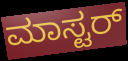
ಮಾಸ್ಟರ್